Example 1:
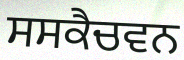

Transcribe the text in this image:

ਸਸਕੈਚਵਨ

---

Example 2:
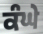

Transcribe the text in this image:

ਕੰਘੇ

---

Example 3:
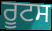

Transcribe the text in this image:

ਰੂਟਸ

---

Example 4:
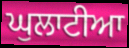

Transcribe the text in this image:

ਘੁਲਾਟੀਆ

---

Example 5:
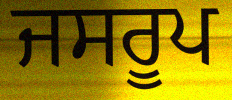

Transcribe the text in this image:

ਜਸਰੂਪ